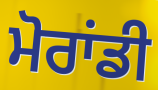
ਮੋਰਾਂਡੀ